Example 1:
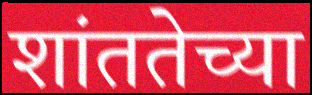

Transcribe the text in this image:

शांततेच्या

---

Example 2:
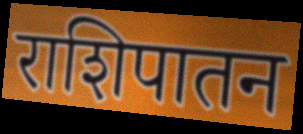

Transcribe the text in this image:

राशिपातन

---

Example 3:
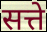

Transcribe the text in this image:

सत्ते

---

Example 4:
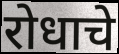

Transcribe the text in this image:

रोधाचे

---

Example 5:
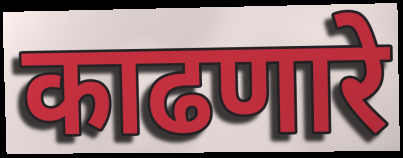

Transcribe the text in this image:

काढणारे